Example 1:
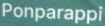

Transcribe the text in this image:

Ponparappi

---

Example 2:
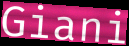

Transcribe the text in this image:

Giani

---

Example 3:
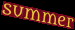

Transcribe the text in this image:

summer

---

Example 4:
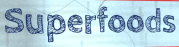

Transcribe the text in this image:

Superfoods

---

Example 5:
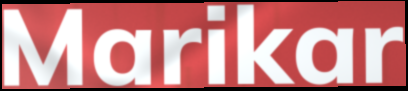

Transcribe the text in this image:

Marikar